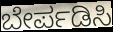
ಬೇರ್ಪಡಿಸಿ